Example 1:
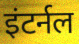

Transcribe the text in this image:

इंटर्नल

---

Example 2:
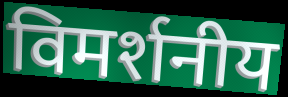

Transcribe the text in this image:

विमर्शनीय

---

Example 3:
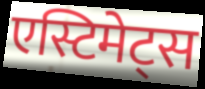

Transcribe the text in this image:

एस्टिमेट्स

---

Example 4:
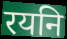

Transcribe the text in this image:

रयनि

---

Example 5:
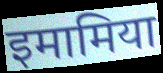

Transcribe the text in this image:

इमामिया